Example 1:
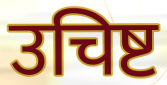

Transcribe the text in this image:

उचिष्ट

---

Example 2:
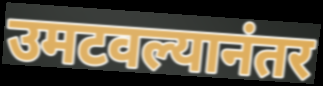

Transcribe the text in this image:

उमटवल्यानंतर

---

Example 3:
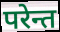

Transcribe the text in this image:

परेन्त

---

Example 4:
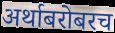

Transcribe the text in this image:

अर्थाबरोबरच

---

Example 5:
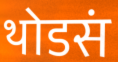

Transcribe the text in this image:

थोडसं